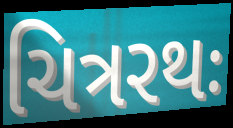
ચિત્રરથઃ